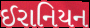
ઈરાનિયન